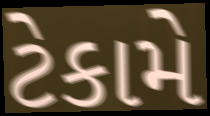
ટેકામે